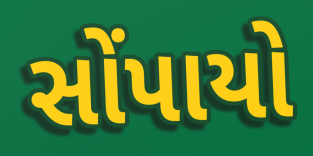
સોંપાયો